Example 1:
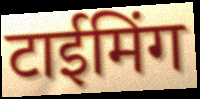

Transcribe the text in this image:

टाईमिंग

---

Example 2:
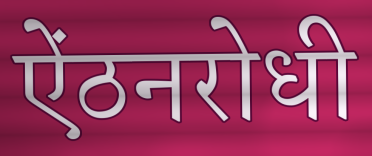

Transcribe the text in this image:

ऐंठनरोधी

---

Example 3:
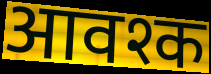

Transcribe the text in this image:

आवश्क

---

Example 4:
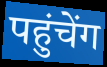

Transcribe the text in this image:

पहुंचेंग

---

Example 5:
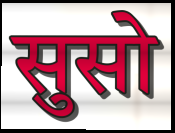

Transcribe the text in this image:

सुसो